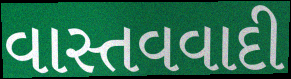
વાસ્તવવાદી